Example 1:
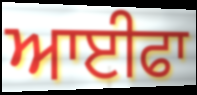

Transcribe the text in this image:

ਆਈਫਾ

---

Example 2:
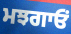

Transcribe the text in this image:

ਮਝਗਾਓਂ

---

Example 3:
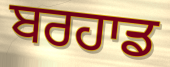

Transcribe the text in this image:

ਬਰਹਾਡ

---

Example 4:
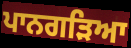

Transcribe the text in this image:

ਪਾਨਗੜਿਆ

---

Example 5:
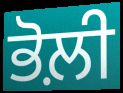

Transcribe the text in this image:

ਭੋਲ਼ੀ